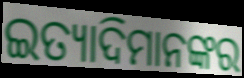
ଇତ୍ୟାଦିମାନଙ୍କର